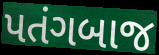
પતંગબાજ